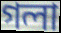
গলা